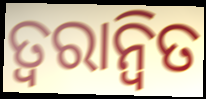
ତ୍ବରାନ୍ବିତ